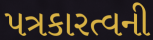
પત્રકારત્વની